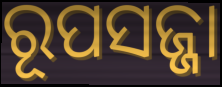
ରୂପସଜ୍ଜା